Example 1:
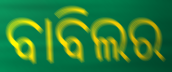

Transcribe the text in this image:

ବାବିଲର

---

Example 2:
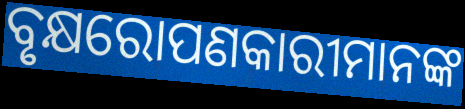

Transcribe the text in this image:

ବୃକ୍ଷରୋପଣକାରୀମାନଙ୍କ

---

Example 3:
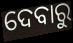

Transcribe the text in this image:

ଦେବାରୁ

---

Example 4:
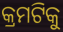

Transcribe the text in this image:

କ୍ରମଟିକୁ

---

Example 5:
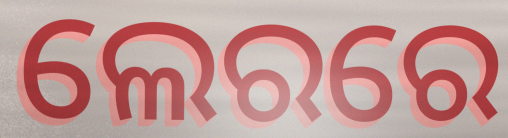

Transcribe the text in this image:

ଲେରରେ